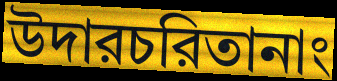
উদারচরিতানাং